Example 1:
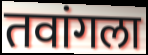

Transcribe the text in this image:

तवांगला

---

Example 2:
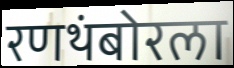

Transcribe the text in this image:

रणथंबोरला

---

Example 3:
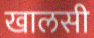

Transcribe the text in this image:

खालसी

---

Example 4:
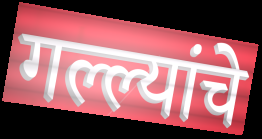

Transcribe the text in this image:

गल्ल्यांचे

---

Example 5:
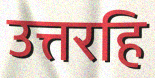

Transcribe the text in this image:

उत्तरहि